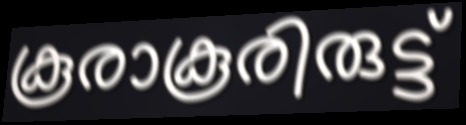
കൂരാകൂരിരുട്ട്